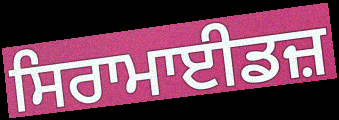
ਸਿਰਾਮਾਈਡਜ਼